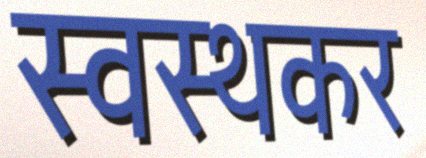
स्वस्थकर